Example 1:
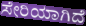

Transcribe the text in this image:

ಸೇರಿಯಾಗಿದೆ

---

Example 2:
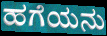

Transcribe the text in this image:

ಹಗೆಯನು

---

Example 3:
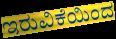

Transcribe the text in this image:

ಇರುವಿಕೆಯಿಂದ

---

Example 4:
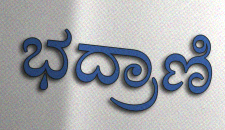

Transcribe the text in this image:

ಭದ್ರಾಣಿ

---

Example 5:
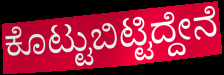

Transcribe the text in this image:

ಕೊಟ್ಟುಬಿಟ್ಟಿದ್ದೇನೆ